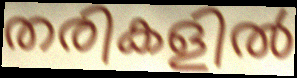
തരികളിൽ